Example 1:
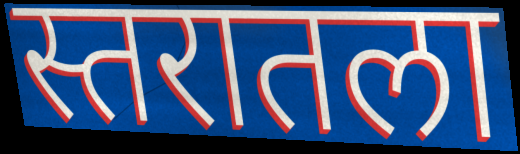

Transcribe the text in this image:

स्तरातला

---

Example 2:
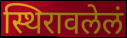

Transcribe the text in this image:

स्थिरावलेलं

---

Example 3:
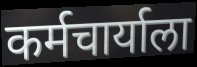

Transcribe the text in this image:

कर्मचार्याला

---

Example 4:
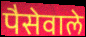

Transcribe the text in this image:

पैसेवाले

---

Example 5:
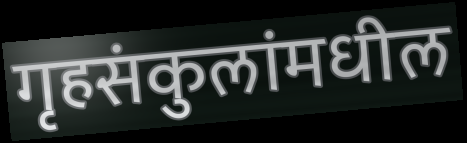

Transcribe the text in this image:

गृहसंकुलांमधील